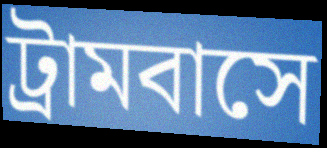
ট্রামবাসে